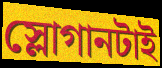
স্লোগানটাই